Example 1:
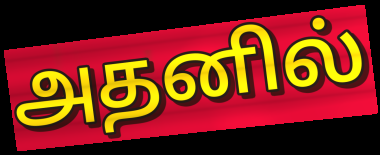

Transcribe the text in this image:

அதனில்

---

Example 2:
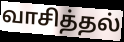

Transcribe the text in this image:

வாசித்தல்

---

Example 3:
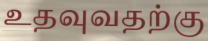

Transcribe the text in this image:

உதவுவதற்கு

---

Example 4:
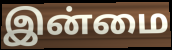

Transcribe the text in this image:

இன்மை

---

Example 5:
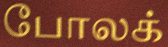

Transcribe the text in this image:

போலக்